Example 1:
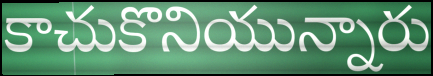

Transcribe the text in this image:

కాచుకొనియున్నారు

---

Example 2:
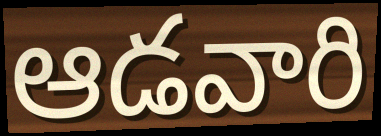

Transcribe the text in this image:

ఆడవారి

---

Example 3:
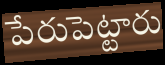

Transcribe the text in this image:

పేరుపెట్టారు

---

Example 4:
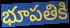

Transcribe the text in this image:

భూపతికి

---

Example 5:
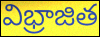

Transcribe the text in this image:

విభ్రాజిత